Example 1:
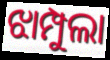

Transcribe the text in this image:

ଝାମ୍ପୁଲା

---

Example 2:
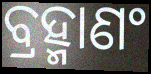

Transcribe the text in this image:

ବ୍ରହ୍ମାଣଂ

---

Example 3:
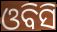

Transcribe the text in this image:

ଓବିସି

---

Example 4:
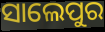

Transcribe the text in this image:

ସାଲେପୁର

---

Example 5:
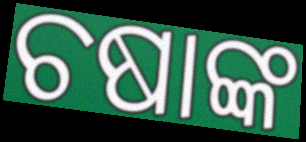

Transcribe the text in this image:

ଚଷାଙ୍କ